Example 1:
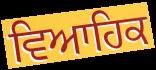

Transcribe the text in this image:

ਵਿਆਹਿਕ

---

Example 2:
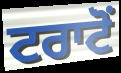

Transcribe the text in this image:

ਟਰਾਟੋਂ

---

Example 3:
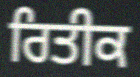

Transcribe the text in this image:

ਰਿਤੀਕ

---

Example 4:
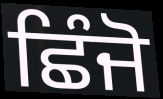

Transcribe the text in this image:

ਛਿੰਜੋ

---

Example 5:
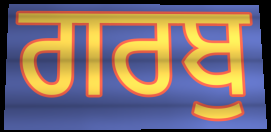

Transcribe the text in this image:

ਗਰਬੁ